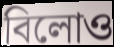
বিলোও